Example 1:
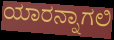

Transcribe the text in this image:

ಯಾರನ್ನಾಗಲಿ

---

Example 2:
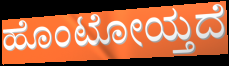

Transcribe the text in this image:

ಹೊಂಟೋಯ್ತದೆ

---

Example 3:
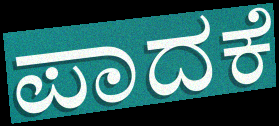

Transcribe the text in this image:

ಪಾದಕೆ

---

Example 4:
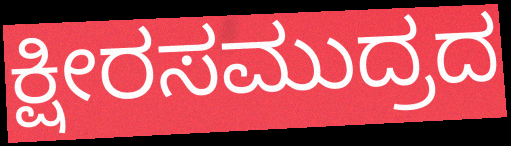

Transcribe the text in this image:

ಕ್ಷೀರಸಮುದ್ರದ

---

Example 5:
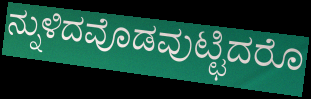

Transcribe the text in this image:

ನ್ನುಳಿದವೊಡವುಟ್ಟಿದರೊ